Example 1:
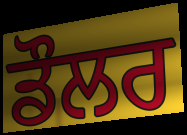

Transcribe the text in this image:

ਡੌਲਰ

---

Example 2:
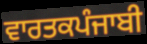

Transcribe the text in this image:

ਵਾਰਤਕਪੰਜਾਬੀ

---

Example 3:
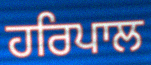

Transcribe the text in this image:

ਹਰਿਪਾਲ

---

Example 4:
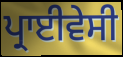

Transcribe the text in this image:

ਪ੍ਰਾਈਵੇਸੀ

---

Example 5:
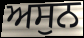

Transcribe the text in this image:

ਅਸੁਨ